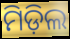
ମିଡ଼ିଲ